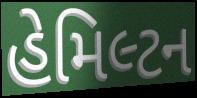
હેમિલ્ટન